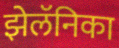
झेलॅनिका